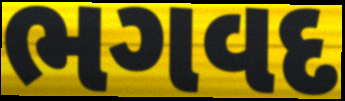
ભગવદ